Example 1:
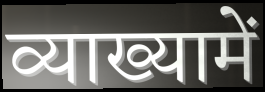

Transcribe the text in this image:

व्याख्यामें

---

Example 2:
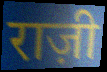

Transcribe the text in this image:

राज़ी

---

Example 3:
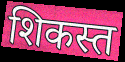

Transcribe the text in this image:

शिकस्त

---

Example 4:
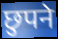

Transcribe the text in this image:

छुपने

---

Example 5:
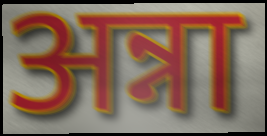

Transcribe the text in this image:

अन्ना